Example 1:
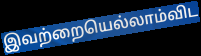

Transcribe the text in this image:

இவற்றையெல்லாம்விட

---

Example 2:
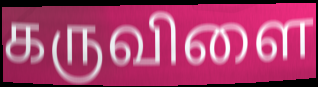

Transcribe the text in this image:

கருவிளை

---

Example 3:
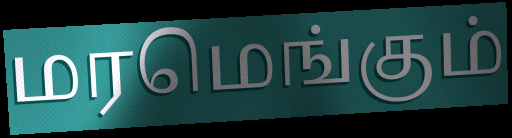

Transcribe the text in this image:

மரமெங்கும்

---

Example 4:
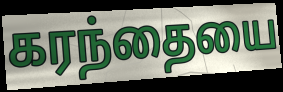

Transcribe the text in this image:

கரந்தையை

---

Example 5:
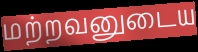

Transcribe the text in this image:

மற்றவனுடைய